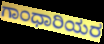
ಗಾಂಧಾರಿಯರ